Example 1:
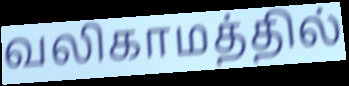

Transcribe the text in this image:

வலிகாமத்தில்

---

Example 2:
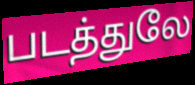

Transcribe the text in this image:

படத்துலே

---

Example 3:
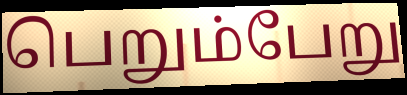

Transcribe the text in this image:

பெறும்பேறு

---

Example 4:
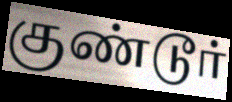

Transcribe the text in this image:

குண்டூர்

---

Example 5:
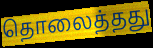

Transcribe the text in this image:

தொலைத்தது